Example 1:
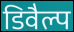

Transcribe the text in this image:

डिवैल्प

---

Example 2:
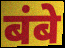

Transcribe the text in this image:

बंबे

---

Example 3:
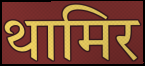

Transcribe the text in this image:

थामिर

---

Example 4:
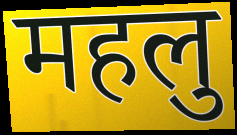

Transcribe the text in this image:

महलु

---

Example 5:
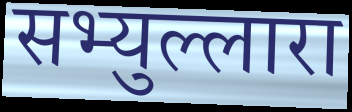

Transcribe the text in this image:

सभ्युल्लारा